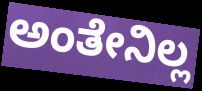
ಅಂತೇನಿಲ್ಲ